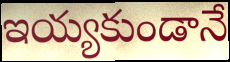
ఇయ్యకుండానే